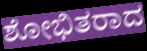
ಶೋಭಿತರಾದ